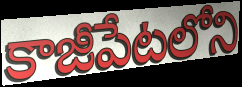
కాజీపేటలోని